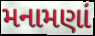
મનામણાં